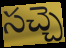
సచ్చె